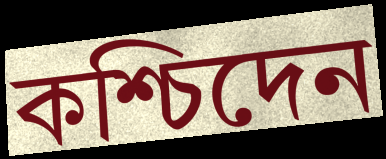
কশ্চিদেন